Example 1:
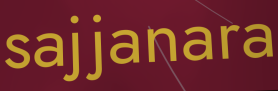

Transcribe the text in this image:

sajjanara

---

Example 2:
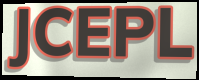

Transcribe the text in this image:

JCEPL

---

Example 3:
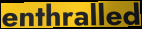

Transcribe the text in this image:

enthralled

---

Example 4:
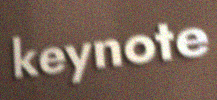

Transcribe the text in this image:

keynote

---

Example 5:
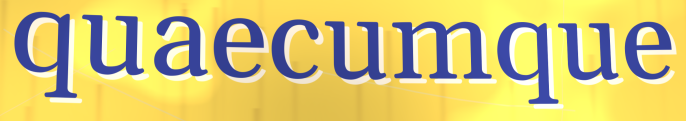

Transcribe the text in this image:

quaecumque